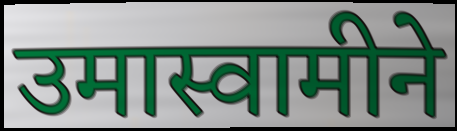
उमास्वामीने